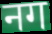
नग